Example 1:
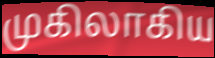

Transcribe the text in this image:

முகிலாகிய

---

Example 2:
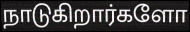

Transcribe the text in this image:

நாடுகிறார்களோ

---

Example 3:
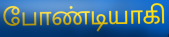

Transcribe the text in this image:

போண்டியாகி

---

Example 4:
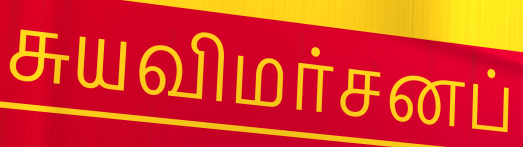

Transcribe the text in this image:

சுயவிமர்சனப்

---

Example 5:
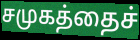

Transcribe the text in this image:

சமுகத்தைச்